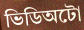
ভিডিঅটো